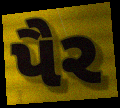
પૈર